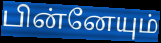
பின்னேயும்